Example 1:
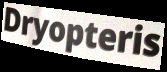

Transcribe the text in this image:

Dryopteris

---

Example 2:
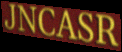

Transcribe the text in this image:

JNCASR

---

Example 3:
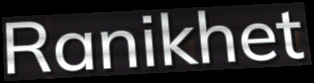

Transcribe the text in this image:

Ranikhet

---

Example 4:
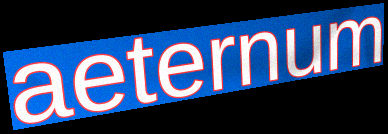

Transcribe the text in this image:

aeternum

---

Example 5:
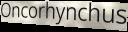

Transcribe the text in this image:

Oncorhynchus